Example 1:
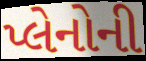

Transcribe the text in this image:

પ્લેનોની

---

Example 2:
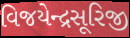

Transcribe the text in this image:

વિજયેન્દ્રસૂરિજી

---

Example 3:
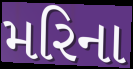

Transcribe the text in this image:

મરિના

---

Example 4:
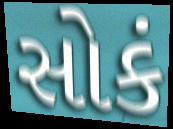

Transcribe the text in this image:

સોકં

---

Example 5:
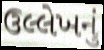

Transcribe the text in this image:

ઉલ્લેખનું